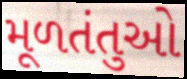
મૂળતંતુઓ